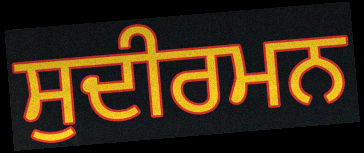
ਸੁਦੀਰਮਨ